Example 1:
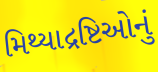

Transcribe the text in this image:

મિથ્યાદ્રષ્ટિઓનું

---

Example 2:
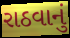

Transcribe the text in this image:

રાઠવાનું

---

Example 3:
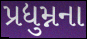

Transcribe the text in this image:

પ્રદ્યુમ્નના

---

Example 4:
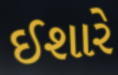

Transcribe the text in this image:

ઈશારે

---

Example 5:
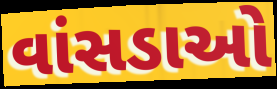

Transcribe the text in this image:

વાંસડાઓ